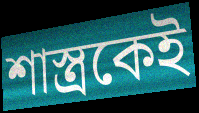
শাস্ত্রকেই